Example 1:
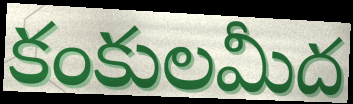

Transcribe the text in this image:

కంకులమీద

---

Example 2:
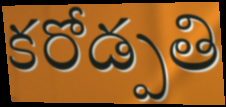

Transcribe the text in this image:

కరోడ్పతి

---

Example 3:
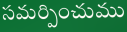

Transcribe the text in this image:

సమర్పించుము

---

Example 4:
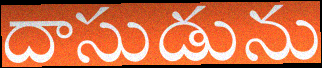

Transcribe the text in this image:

దాసుడును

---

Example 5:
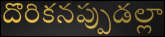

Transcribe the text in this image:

దొరికనప్పుడల్లా